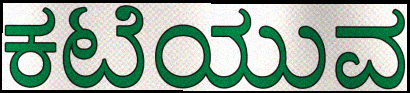
ಕಟೆಯುವ